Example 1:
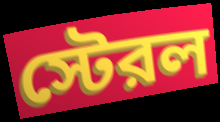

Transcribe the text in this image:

স্টেরল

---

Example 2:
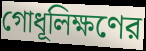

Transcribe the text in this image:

গোধূলিক্ষণের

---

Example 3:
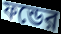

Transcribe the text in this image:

ফন্ডের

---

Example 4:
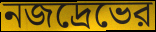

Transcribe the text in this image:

নজদ্রেভের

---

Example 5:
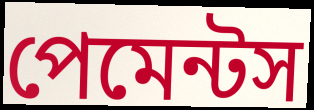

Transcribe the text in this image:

পেমেন্টস